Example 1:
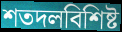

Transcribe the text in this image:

শতদলবিশিষ্ট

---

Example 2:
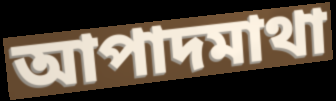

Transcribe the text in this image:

আপাদমাথা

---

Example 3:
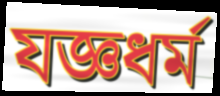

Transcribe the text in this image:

যজ্ঞধর্ম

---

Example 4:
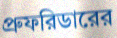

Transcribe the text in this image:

প্রুফরিডারের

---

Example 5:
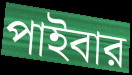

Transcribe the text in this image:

পাইবার